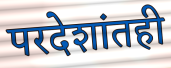
परदेशांतही